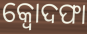
କ୍ବୋଦଫା